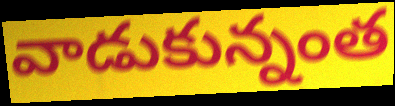
వాడుకున్నంత